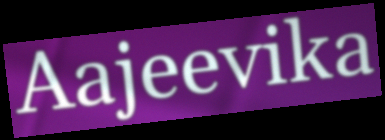
Aajeevika